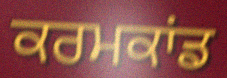
ਕਰਮਕਾਂਡ